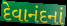
દેવાનંદનાં